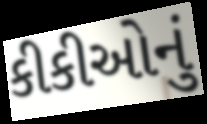
કીકીઓનું